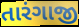
તારંગાજી